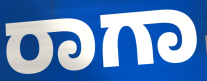
ರಾಗಾ